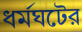
ধর্মঘটের